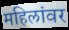
महिलांवर